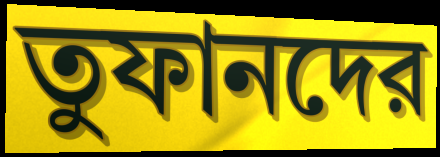
তুফানদের